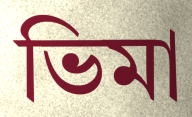
ভিমা